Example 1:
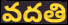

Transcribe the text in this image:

వదతి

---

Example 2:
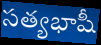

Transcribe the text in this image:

సత్యభాషీ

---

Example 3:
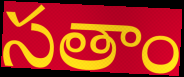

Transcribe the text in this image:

సతాం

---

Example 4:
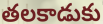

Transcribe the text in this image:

తలకాడుకు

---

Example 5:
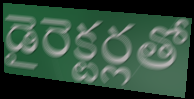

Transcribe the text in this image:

డైరెక్టర్లతో